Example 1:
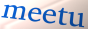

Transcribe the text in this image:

meetu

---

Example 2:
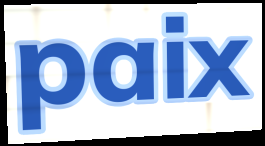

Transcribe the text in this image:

paix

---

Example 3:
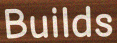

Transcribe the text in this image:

Builds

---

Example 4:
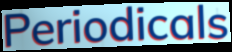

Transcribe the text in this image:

Periodicals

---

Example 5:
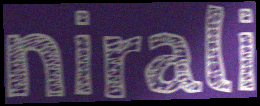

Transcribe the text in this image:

nirali